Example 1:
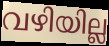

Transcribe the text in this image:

വഴിയില്ല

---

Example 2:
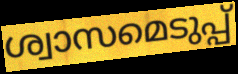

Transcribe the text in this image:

ശ്വാസമെടുപ്പ്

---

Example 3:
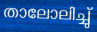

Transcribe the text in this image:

താലോലിച്ചു്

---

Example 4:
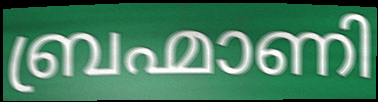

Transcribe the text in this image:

ബ്രഹ്മാണി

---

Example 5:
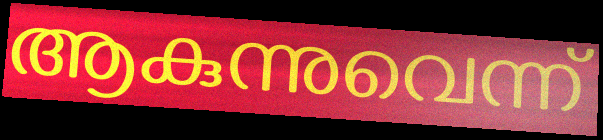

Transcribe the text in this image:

ആകുന്നുവെന്ന്